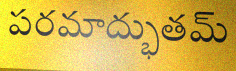
పరమాద్భుతమ్